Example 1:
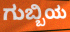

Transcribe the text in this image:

ಗುಬ್ಬಿಯ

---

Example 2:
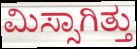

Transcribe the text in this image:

ಮಿಸ್ಸಾಗಿತ್ತು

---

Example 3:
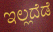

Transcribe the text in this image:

ಇಲ್ಲದೆಡೆ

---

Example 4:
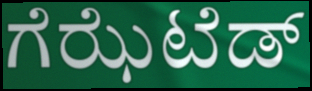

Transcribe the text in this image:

ಗೆಝೆಟೆಡ್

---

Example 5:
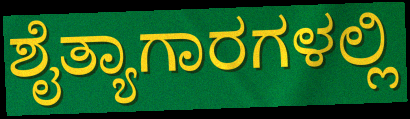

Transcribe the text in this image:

ಶೈತ್ಯಾಗಾರಗಳಲ್ಲಿ